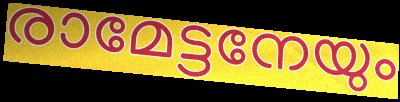
രാമേട്ടനേയും